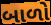
બાળો